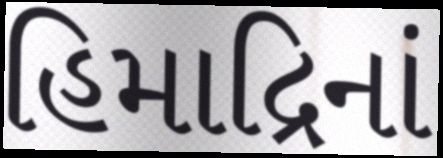
હિમાદ્રિનાં